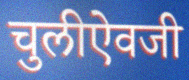
चुलीऐवजी